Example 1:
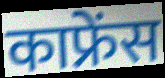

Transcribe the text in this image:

काफ्रेंस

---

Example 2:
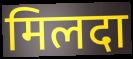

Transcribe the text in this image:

मिलदा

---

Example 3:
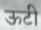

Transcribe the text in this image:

ऊटी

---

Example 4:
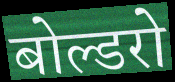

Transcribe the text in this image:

बोल्डरो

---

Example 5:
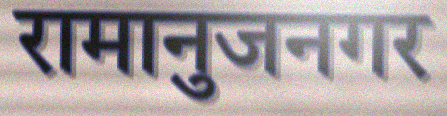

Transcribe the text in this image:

रामानुजनगर